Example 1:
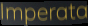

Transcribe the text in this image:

Imperata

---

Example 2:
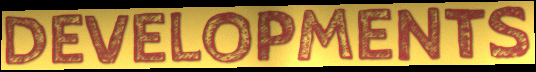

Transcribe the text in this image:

DEVELOPMENTS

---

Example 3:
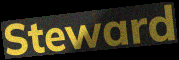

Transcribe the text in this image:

Steward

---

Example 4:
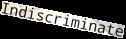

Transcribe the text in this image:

Indiscriminate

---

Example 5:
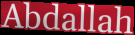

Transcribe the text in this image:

Abdallah